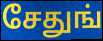
சேதுங்